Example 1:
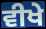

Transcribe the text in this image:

ਵੀਖੇ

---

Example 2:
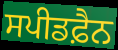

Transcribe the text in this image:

ਸਪੀਡਫ਼ੈਨ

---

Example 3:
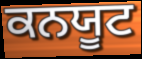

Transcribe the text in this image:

ਕਨਯੂਟ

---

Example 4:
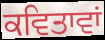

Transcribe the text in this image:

ਕਵਿਤਾਵਾਂ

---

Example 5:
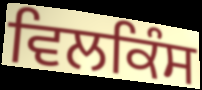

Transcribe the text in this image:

ਵਿਲਕਿੰਸ